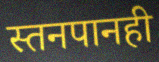
स्तनपानही